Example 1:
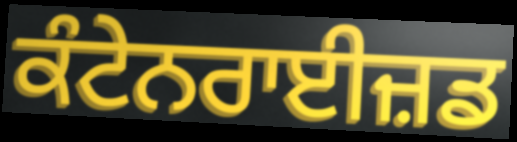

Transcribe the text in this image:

ਕੰਟੇਨਰਾਈਜ਼ਡ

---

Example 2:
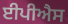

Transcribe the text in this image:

ਈਪੀਐਸ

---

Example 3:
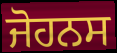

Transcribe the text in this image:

ਜੋਹਨਸ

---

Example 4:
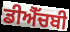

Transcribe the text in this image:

ਡੀਐੱਚਬੀ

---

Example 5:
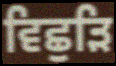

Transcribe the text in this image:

ਵਿਛੁੜਿ